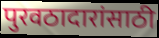
पुरवठादारांसाठी